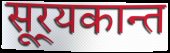
सूर्यकान्त